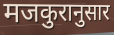
मजकुरानुसार